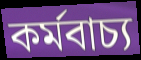
কৰ্মবাচ্য